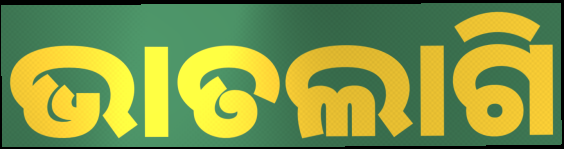
ଭାତଲାଗି